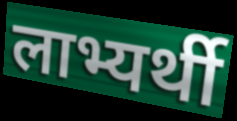
लाभ्यर्थी